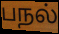
பநல்